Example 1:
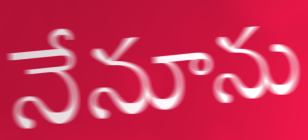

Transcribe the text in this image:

నేనూను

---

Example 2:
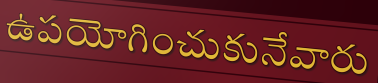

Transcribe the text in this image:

ఉపయోగించుకునేవారు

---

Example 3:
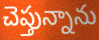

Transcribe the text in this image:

చెప్తున్నాను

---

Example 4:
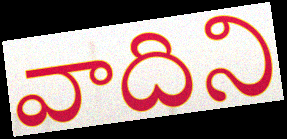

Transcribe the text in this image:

వాదిని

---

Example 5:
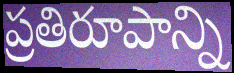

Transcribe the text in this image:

ప్రతిరూపాన్ని